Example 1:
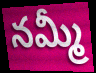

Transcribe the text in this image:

నమ్మీ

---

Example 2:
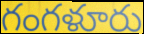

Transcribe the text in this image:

గంగళూరు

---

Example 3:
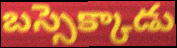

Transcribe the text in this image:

బస్సెక్కాడు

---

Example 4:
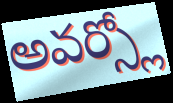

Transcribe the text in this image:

అవర్స్లో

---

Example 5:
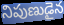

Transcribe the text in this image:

నిపుణుడైన